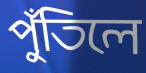
পুঁতিলে